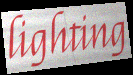
lighting